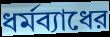
ধর্মব্যাধের